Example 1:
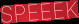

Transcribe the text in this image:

SPEEEK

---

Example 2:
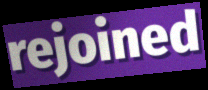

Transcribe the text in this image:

rejoined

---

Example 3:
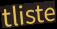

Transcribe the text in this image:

tliste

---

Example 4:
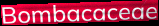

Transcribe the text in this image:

Bombacaceae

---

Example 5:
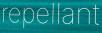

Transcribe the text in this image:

repellant